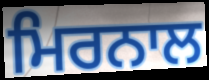
ਮਿਰਨਾਲ